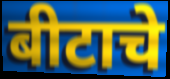
बीटाचे